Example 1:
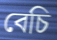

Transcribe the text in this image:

বেচি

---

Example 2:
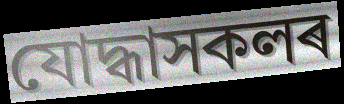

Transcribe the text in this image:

যোদ্ধাসকলৰ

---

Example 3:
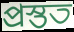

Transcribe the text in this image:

প্ৰস্তত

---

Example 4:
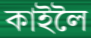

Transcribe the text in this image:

কাইলৈ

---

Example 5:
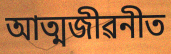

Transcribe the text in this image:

আত্মজীৱনীত